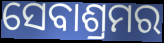
ସେବାଶ୍ରମର